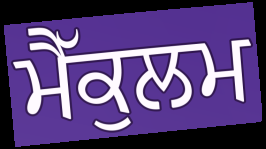
ਮੈੱਕੁਲਮ